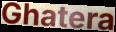
Ghatera